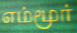
எம்மூர்